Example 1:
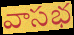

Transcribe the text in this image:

వాసభ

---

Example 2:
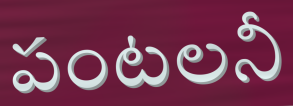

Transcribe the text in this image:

పంటలనీ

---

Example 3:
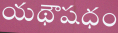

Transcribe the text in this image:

యథౌషధం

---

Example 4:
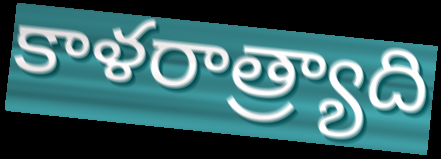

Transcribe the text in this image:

కాళరాత్ర్యాది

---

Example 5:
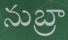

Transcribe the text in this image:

నుబ్రా